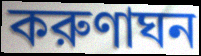
করুণাঘন